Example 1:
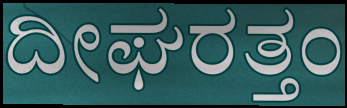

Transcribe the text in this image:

ದೀಘರತ್ತಂ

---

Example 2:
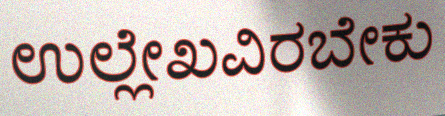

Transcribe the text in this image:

ಉಲ್ಲೇಖವಿರಬೇಕು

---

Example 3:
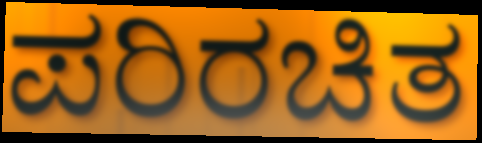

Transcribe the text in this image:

ಪರಿರಚಿತ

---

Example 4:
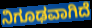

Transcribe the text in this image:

ನಿಗೂಢವಾಗಿದೆ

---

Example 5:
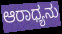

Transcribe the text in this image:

ಆರಾಧ್ಯನು